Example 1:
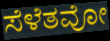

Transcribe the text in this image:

ಸೆಳೆತವೋ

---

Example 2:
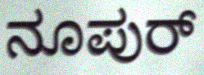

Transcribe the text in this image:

ನೂಪುರ್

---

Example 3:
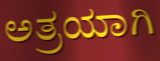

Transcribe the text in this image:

ಅತ್ರಯಾಗಿ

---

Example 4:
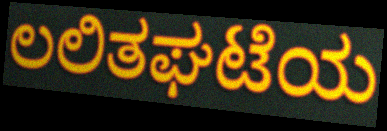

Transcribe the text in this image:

ಲಲಿತಘಟೆಯ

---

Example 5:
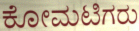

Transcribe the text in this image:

ಕೋಮಟಿಗರು